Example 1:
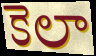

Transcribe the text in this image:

కెలా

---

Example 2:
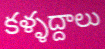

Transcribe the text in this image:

కళ్ళద్దాలు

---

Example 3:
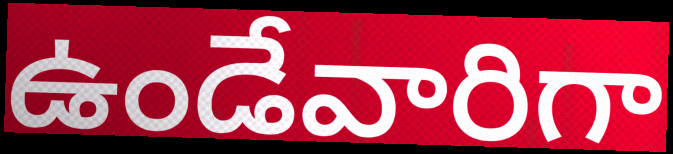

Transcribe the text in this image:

ఉండేవారిగా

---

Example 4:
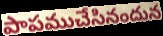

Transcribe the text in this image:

పాపముచేసినందున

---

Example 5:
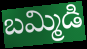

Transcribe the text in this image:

బమ్మిడి